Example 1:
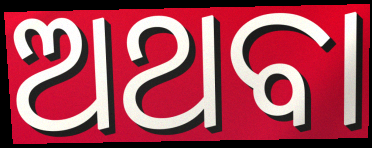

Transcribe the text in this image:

ଅଥବା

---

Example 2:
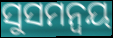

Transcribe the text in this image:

ସୁସମନ୍ଵୟ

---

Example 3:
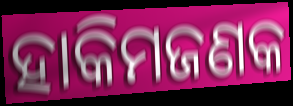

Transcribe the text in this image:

ହାକିମଜଣକ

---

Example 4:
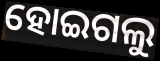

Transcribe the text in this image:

ହୋଇଗଲୁ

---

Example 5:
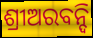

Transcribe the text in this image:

ଶ୍ରୀଅରବନ୍ଦି